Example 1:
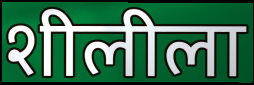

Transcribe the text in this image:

शीलीला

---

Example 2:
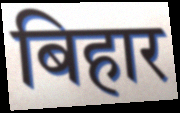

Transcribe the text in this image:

बिहार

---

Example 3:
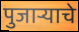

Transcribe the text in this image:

पुजाऱ्याचे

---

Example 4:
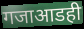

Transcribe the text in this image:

गजाआडही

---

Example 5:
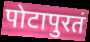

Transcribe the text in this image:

पोटापुरतं